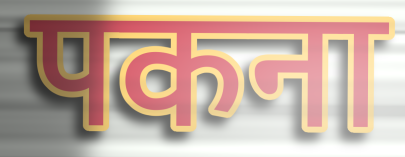
पकना